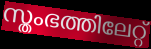
സ്തംഭത്തിലേറ്റ്